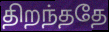
திறந்ததே